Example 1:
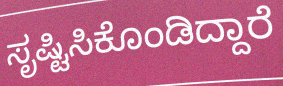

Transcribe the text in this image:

ಸೃಷ್ಟಿಸಿಕೊಂಡಿದ್ದಾರೆ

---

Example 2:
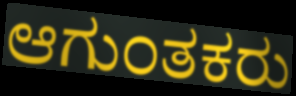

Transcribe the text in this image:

ಆಗುಂತಕರು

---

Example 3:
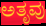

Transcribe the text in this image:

ಅತೃವು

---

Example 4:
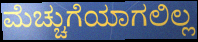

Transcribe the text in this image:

ಮೆಚ್ಚುಗೆಯಾಗಲಿಲ್ಲ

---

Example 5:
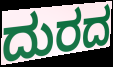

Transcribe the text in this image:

ದುರದ